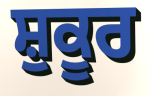
ਸ਼ੁਕੂਰ